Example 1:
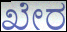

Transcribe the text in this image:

ಖೇರ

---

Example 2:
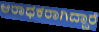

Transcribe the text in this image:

ಆರಾಧಕರಾಗಿದ್ದಾರೆ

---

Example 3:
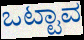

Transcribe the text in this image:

ಒಟ್ಟಾವ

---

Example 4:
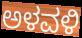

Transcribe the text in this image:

ಅಳವಳಿ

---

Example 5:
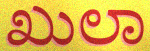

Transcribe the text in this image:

ಖುಲಾ